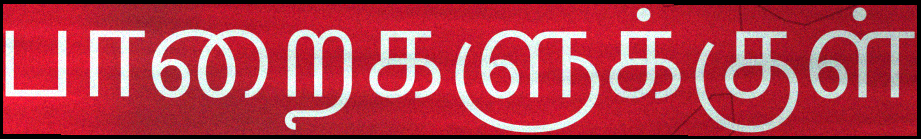
பாறைகளுக்குள்